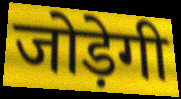
जोड़ेगी